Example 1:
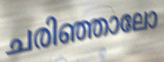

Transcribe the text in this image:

ചരിഞ്ഞാലോ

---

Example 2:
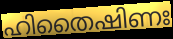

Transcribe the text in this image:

ഹിതൈഷിണഃ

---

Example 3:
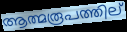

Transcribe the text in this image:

ആത്മരൂപത്തില്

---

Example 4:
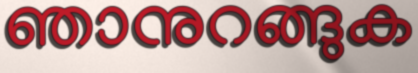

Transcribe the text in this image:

ഞാനുറങ്ങുക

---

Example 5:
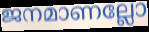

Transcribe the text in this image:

ജനമാണല്ലോ